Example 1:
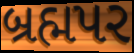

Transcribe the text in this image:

બ્રહ્મપર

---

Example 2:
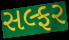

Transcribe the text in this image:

સલ્ફર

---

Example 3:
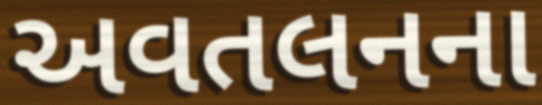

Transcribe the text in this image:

અવતલનના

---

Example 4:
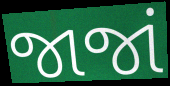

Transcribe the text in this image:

જાજાં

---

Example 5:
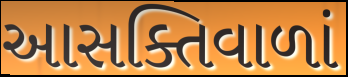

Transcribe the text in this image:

આસક્તિવાળાં